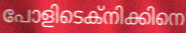
പോളിടെക്നിക്കിനെ